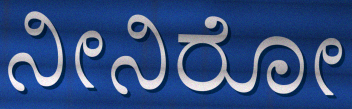
ನೀನಿರೋ